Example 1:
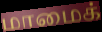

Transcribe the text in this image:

மாமைக்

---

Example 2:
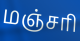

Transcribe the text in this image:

மஞ்சரி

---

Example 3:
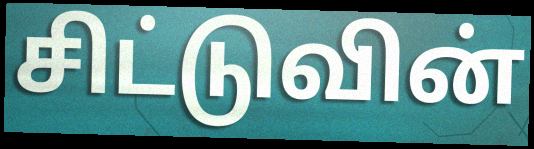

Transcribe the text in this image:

சிட்டுவின்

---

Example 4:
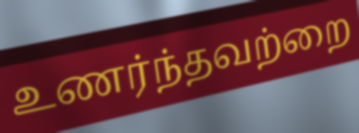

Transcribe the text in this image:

உணர்ந்தவற்றை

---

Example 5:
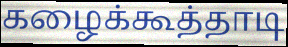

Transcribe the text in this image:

கழைக்கூத்தாடி